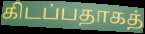
கிடப்பதாகத்